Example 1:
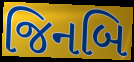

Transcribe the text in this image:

જિનબિ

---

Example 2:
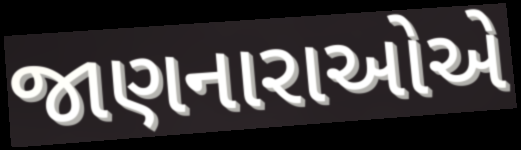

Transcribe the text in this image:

જાણનારાઓએ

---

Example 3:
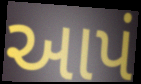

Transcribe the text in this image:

આપં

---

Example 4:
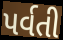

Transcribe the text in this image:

પર્વતી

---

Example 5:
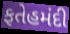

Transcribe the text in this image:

ફતેહમંદી